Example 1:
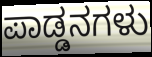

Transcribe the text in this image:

ಪಾಡ್ಡನಗಳು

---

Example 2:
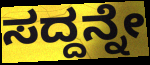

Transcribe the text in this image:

ಸದ್ದನ್ನೇ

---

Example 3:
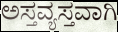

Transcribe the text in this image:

ಅಸ್ತವ್ಯಸ್ತವಾಗಿ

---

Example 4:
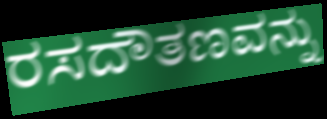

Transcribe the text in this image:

ರಸದೌತಣವನ್ನು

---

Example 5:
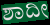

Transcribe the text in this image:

ಶಾದೀ